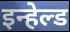
इन्हेल्ड